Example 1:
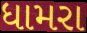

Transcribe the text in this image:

ધામરા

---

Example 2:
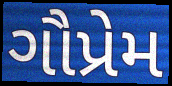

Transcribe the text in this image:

ગૌપ્રેમ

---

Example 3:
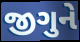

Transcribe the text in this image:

જીગુને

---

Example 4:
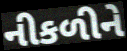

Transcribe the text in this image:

નીકળીને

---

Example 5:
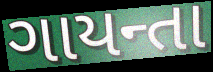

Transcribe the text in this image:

ગાયન્તા